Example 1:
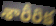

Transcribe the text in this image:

శారీరిక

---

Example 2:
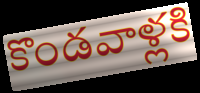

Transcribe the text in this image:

కొండవాళ్లకి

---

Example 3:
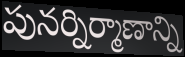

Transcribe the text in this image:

పునర్నిర్మాణాన్ని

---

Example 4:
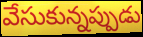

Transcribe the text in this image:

వేసుకున్నప్పుడు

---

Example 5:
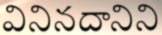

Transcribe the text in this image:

వినినదానిని